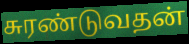
சுரண்டுவதன்